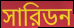
সারিডন